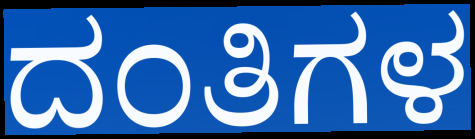
ದಂತಿಗಳ